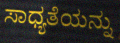
ಸಾಧ್ಯತೆಯನ್ನು